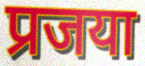
प्रजया